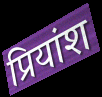
प्रियांश